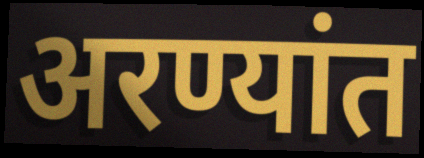
अरण्यांत